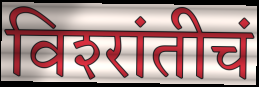
विश्रांतीचं